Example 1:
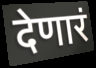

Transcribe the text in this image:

देणारं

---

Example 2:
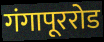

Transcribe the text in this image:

गंगापूररोड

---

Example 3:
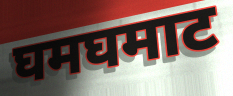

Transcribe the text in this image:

घमघमाट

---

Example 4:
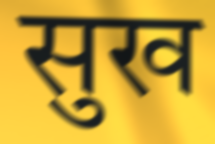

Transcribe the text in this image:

सुख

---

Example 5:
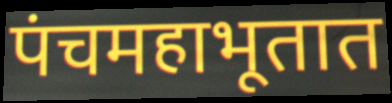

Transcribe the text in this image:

पंचमहाभूतात